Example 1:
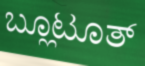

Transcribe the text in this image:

ಬ್ಲೂಟೂತ್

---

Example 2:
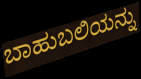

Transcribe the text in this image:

ಬಾಹುಬಲಿಯನ್ನು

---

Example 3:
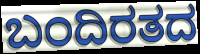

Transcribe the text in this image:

ಬಂದಿರತದ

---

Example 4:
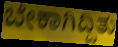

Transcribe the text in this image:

ಬೇಕಾಗಿದ್ದಿತು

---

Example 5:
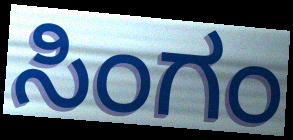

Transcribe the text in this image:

ಸಿಂಗಂ